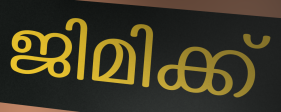
ജിമിക്ക്